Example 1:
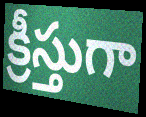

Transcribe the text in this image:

క్రీస్తుగా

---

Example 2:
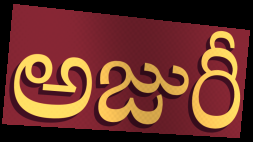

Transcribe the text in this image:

అజురీ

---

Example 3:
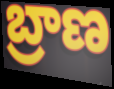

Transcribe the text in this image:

బ్రాణ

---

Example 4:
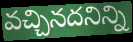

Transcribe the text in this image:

వచ్చినదనిన్ని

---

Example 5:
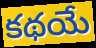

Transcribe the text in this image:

కథయే